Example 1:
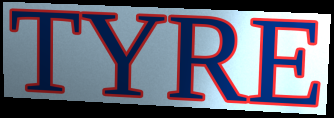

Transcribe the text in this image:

TYRE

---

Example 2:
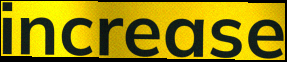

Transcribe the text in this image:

increase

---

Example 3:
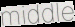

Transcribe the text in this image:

middle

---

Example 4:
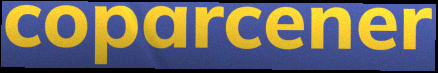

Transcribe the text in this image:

coparcener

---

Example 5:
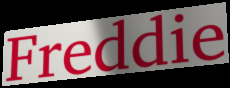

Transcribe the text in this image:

Freddie